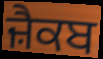
ਜ਼ੈਕਬ